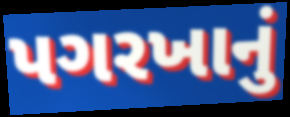
પગરખાનું